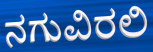
ನಗುವಿರಲಿ